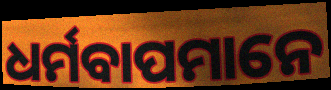
ଧର୍ମବାପମାନେ